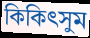
কিকিৎসুম